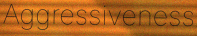
Aggressiveness